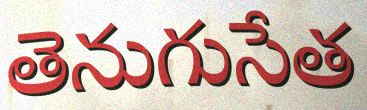
తెనుగుసేత